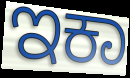
ಇಕಾ